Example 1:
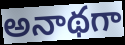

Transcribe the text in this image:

అనాథగా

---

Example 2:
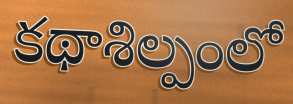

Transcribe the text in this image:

కథాశిల్పంలో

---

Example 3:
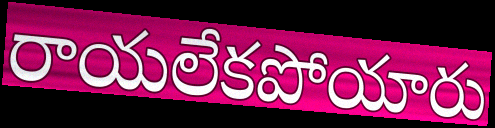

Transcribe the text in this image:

రాయలేకపోయారు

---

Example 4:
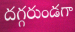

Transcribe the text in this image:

దగ్గరుండగా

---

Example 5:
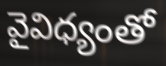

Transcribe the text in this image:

వైవిధ్యంతో